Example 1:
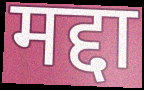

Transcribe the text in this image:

मद्दा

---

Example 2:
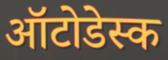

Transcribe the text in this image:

ऑटोडेस्क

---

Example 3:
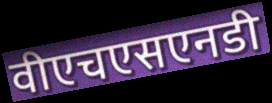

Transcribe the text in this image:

वीएचएसएनडी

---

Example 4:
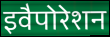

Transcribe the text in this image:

इवैपोरेशन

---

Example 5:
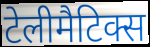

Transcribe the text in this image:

टेलीमैटिक्स